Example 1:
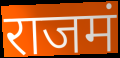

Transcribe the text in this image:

राजमं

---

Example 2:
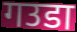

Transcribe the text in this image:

गउडा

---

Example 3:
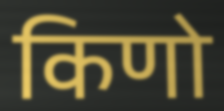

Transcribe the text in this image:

किणो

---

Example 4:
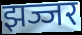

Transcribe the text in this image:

झज्जर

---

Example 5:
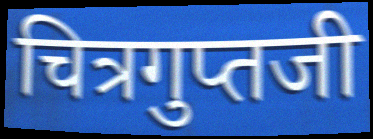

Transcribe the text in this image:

चित्रगुप्तजी